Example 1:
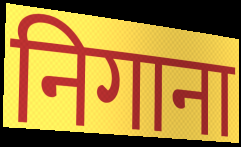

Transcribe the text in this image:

निगाना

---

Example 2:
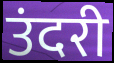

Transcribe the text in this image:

उंदरी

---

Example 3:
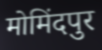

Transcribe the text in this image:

मोमिंदपुर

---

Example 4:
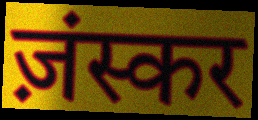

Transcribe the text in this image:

ज़ंस्कर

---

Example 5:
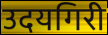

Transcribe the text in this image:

उदयगिरी